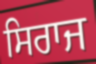
ਸਿਰਾਜ